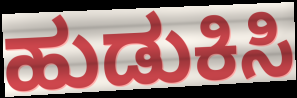
ಹುಡುಕಿಸಿ